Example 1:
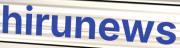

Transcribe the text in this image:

hirunews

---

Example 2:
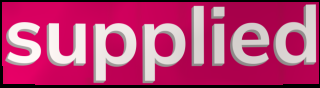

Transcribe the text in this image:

supplied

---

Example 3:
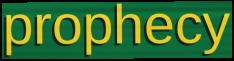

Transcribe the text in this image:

prophecy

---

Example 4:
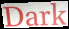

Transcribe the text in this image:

Dark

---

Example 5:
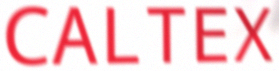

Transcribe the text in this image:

CALTEX